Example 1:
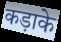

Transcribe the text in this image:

कड़ाके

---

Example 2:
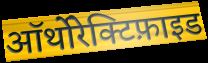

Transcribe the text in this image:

ऑर्थोरेक्टिफ़ाइड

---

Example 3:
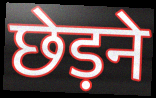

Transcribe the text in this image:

छेड़ने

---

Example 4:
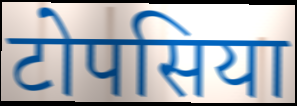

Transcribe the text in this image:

टोपसिया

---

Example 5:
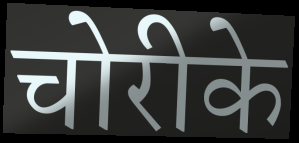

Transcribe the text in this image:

चोरीके